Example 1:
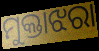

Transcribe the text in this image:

ମୁକ୍ତାଝରା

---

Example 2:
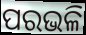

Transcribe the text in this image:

ପରଭଳି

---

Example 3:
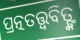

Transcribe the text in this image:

ପ୍ରତ୍ନତତ୍ତ୍ୱବିତ୍ଙ୍କ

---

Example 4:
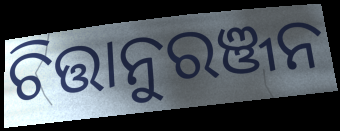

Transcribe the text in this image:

ଚିତ୍ତାନୁରଞ୍ଜନ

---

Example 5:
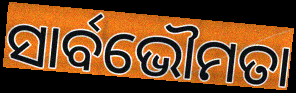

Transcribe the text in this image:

ସାର୍ବଭୌମତା